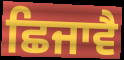
ਛਿਜਾਵੈ